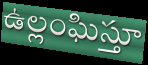
ఉల్లంఘిస్తూ